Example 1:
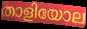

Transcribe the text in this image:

താളിയോല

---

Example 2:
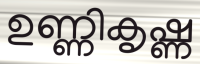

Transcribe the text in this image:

ഉണ്ണികൃഷ്ണ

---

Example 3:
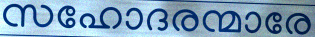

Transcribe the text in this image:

സഹോദരന്മാരേ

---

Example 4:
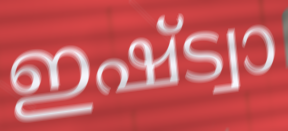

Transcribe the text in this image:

ഇഷ്ട്വാ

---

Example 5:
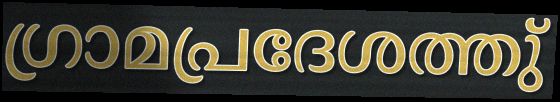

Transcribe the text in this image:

ഗ്രാമപ്രദേശത്തു്